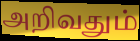
அறிவதும்